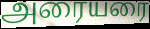
அரையரை